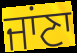
ਜਾਂਣਾ